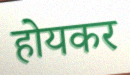
होयकर